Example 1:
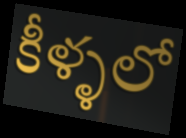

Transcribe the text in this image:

కీళ్ళలో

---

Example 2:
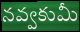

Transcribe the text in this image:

నవ్వకుమీ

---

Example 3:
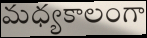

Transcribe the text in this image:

మధ్యకాలంగా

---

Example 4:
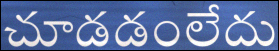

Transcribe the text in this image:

చూడడంలేదు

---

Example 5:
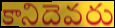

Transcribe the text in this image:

కానిదెవరు